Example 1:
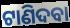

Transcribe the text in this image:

ଟାଣିଦବା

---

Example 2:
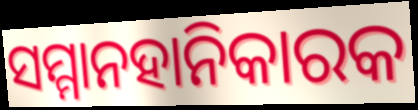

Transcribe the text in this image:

ସମ୍ମାନହାନିକାରକ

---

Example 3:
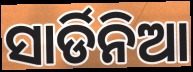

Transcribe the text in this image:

ସାର୍ଡିନିଆ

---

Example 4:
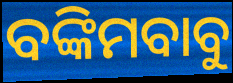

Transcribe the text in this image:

ବଙ୍କିମବାବୁ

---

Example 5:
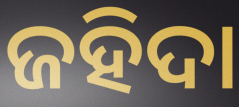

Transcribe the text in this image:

ଜହିଦା